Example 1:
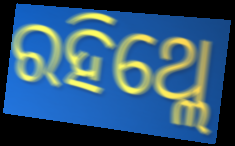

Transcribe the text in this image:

ରହିଥ୍ଲେ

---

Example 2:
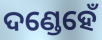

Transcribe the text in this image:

ଦଣ୍ଡେହେଁ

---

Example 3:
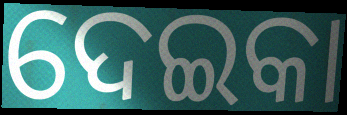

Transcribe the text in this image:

ଦେଇକା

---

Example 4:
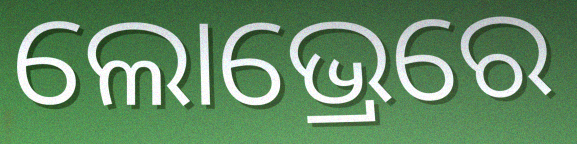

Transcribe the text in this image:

ଲୋଭ୍ରେରେ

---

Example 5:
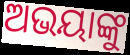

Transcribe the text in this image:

ଅଭୟାଙ୍କୁ